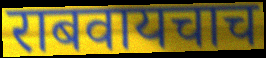
राबवायचाच